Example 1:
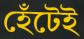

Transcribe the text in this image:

হেঁটেই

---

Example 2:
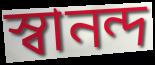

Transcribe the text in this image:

স্বানন্দ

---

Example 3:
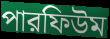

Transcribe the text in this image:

পারফিউম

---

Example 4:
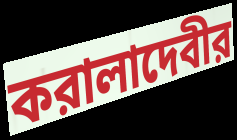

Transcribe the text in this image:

করালাদেবীর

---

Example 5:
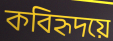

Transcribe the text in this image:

কবিহৃদয়ে